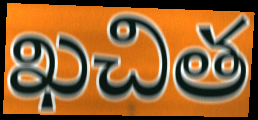
ఖచిత